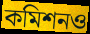
কমিশনও